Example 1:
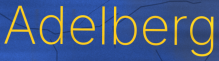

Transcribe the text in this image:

Adelberg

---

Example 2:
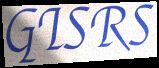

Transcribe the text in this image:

GISRS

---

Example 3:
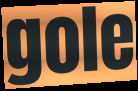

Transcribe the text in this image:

gole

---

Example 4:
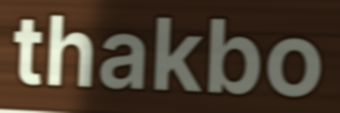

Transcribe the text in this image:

thakbo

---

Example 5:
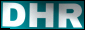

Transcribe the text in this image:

DHR